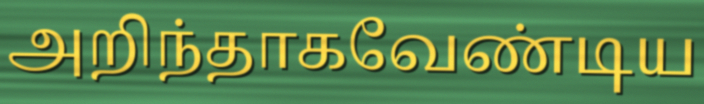
அறிந்தாகவேண்டிய